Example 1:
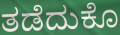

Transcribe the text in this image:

ತಡೆದುಕೊ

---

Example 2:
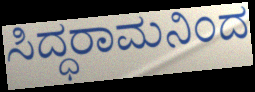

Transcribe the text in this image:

ಸಿದ್ಧರಾಮನಿಂದ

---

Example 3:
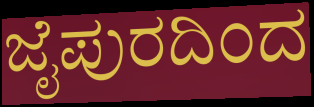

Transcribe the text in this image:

ಜೈಪುರದಿಂದ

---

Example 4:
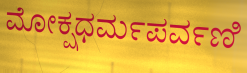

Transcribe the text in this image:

ಮೋಕ್ಷಧರ್ಮಪರ್ವಣಿ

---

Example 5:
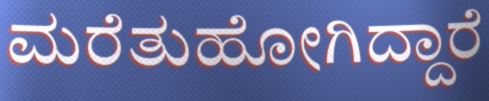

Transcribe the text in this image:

ಮರೆತುಹೋಗಿದ್ದಾರೆ